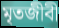
মৃতজীবী